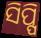
ସିପ୍ପି